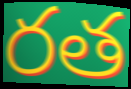
రత